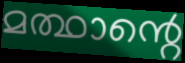
മത്ഥാന്റെ